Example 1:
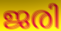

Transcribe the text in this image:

ജരി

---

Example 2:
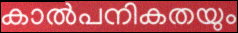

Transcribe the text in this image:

കാൽപനികതയും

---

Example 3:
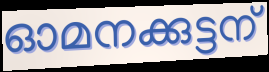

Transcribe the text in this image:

ഓമനക്കുട്ടന്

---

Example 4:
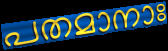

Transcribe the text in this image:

പതമാനാഃ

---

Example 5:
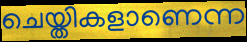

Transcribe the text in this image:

ചെയ്തികളാണെന്ന